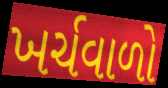
ખર્ચવાળો